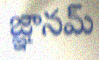
జ్ఞానమ్